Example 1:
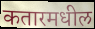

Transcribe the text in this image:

कतारमधील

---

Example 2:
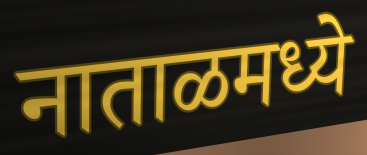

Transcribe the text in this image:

नाताळमध्ये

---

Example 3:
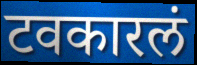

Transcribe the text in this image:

टवकारलं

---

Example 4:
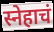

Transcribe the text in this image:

स्नेहाचं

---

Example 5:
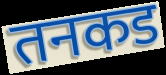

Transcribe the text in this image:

तनकड